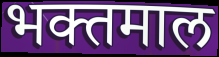
भक्तमाल